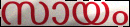
സായം